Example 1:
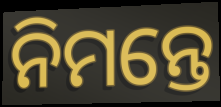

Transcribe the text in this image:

ନିମନ୍ତେ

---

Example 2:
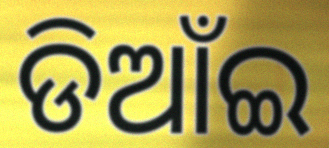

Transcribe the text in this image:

ଡିଆଁଇ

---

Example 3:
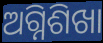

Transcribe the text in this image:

ଅଗ୍ନିଶିଖା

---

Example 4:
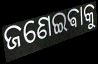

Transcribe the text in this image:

ଜଣେଇଵାକୁ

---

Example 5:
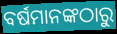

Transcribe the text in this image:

ବର୍ଷମାନଙ୍କଠାରୁ